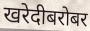
खरेदीबरोबर